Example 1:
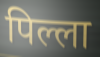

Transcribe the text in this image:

पिल्ला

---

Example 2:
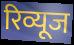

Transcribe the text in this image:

रिव्यूज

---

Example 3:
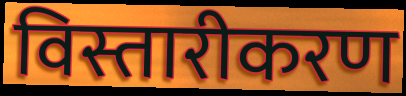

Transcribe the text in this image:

विस्तारीकरण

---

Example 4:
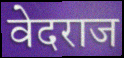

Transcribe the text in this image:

वेदराज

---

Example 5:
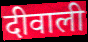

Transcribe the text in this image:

दीवाली